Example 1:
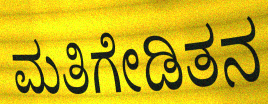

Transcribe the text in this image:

ಮತಿಗೇಡಿತನ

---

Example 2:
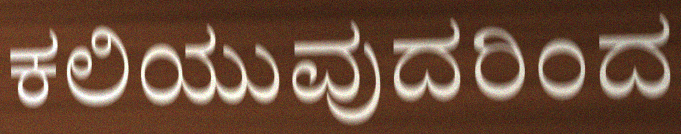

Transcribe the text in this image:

ಕಲಿಯುವುದರಿಂದ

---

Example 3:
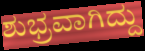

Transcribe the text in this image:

ಶುಭ್ರವಾಗಿದ್ದು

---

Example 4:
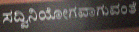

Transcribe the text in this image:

ಸದ್ವಿನಿಯೋಗವಾಗುವಂತೆ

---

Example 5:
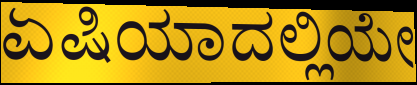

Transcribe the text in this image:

ಏಷಿಯಾದಲ್ಲಿಯೇ